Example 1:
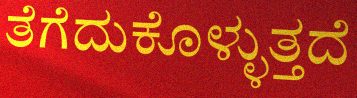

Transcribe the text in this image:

ತೆಗೆದುಕೊಳ್ಳುತ್ತದೆ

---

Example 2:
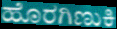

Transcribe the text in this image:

ಹೊರಗಿಣುಕಿ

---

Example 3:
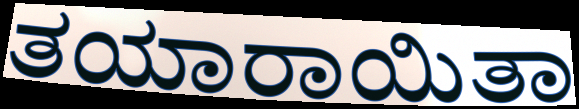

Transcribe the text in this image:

ತಯಾರಾಯಿತಾ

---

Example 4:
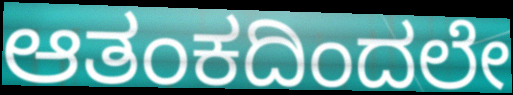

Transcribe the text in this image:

ಆತಂಕದಿಂದಲೇ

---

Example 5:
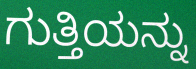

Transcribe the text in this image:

ಗುತ್ತಿಯನ್ನು